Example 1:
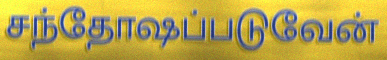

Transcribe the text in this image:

சந்தோஷப்படுவேன்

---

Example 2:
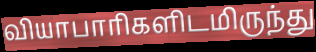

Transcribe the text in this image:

வியாபாரிகளிடமிருந்து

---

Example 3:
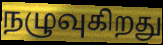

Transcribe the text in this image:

நழுவுகிறது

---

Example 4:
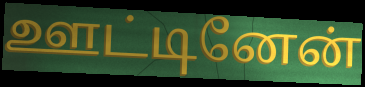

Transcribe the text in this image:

ஊட்டினேன்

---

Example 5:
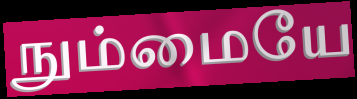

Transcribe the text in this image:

நும்மையே